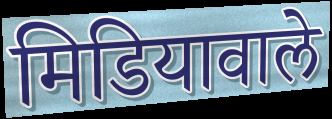
मिडियावाले